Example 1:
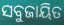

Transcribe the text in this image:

ସବୁଜାୟିତ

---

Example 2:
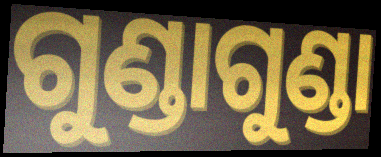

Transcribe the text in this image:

ଗୁଣ୍ଡାଗୁଣ୍ଡା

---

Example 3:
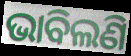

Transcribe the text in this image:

ଭାବିଲଣି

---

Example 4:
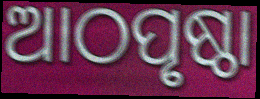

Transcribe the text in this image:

ଆଠପୃଷ୍ଠା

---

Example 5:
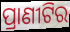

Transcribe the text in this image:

ପ୍ରାଣୀଟିର